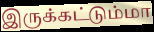
இருக்கட்டும்மா